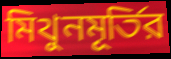
মিথুনমূর্তির